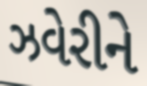
ઝવેરીને